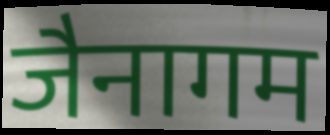
जैनागम